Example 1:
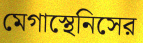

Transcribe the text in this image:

মেগাস্থেনিসের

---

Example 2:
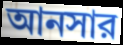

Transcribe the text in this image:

আনসার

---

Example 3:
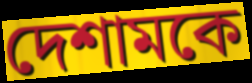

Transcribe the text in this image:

দেশামকে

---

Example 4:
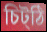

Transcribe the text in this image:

চিট্ঠি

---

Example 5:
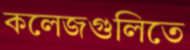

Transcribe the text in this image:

কলেজগুলিতে